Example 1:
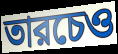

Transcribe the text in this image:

তারচেও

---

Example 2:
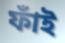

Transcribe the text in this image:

ফাঁই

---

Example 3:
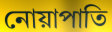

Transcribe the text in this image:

নোয়াপাতি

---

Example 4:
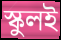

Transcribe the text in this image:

স্কুলই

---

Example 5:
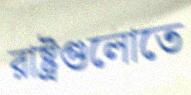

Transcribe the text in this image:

রাষ্ট্রগুলোতে